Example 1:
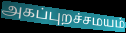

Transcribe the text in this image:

அகப்புறச்சமயம்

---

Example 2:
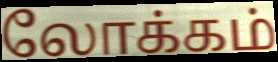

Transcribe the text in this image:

லோக்கம்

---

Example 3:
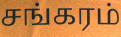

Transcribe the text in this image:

சங்கரம்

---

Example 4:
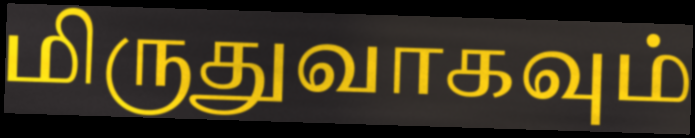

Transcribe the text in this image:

மிருதுவாகவும்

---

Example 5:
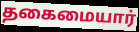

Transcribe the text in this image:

தகைமையார்